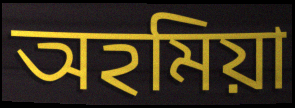
অহমিয়া